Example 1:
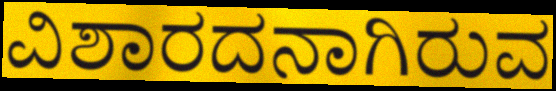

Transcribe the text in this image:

ವಿಶಾರದನಾಗಿರುವ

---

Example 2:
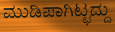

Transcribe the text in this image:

ಮುಡಿಪಾಗಿಟ್ಟದ್ದು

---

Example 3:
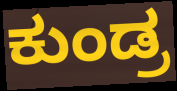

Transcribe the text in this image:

ಕುಂಡ್ರ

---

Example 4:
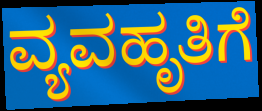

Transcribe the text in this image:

ವ್ಯವಹೃತಿಗೆ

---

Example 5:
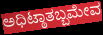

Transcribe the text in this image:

ಅಧಿಟ್ಠಾತಬ್ಬಮೇವ